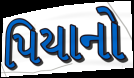
પિયાનો